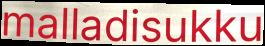
malladisukku